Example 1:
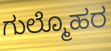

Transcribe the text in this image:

ಗುಲ್ಮೊಹರ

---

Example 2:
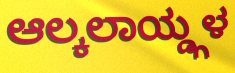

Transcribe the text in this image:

ಆಲ್ಕಲಾಯ್ಡ್ಗಳ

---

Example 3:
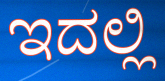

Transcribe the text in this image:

ಇದಲ್ಲಿ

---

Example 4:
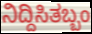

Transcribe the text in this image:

ನಿದ್ದಿಸಿತಬ್ಬಂ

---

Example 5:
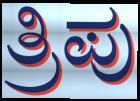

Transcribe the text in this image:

ತ್ರಿಪು